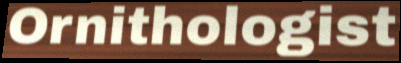
Ornithologist